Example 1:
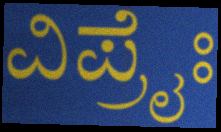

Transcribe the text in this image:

ವಿಪ್ರೈಃ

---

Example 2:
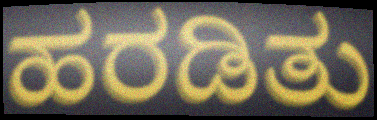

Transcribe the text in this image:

ಹರಡಿತು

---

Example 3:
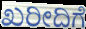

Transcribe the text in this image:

ಖರೀದಿಗೆ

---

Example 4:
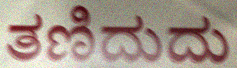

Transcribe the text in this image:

ತಣಿದುದು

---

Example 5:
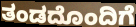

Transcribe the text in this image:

ತಂಡದೊಂದಿಗೆ